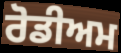
ਰੋਡੀਅਮ